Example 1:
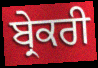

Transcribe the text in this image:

ਬ੍ਰੇਕਰੀ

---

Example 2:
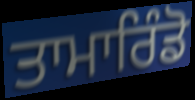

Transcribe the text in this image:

ਤਾਮਾਰਿੰਡੋ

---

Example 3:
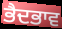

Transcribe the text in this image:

ਭੈਦਭਾਵ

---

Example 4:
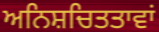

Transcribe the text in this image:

ਅਨਿਸ਼ਚਿਤਤਾਵਾਂ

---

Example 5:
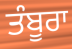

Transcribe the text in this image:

ਤੰਬੂਰਾ